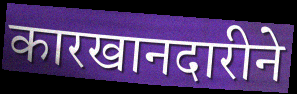
कारखानदारीने